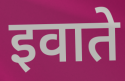
इवाते